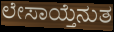
ಲೇಸಾಯ್ತೆನುತ